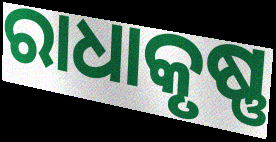
ରାଧାକୃଷ୍ଣ